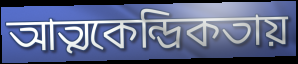
আত্মকেন্দ্রিকতায়